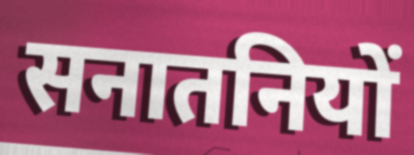
सनातनियों